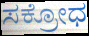
ಸಕ್ರೋಧ